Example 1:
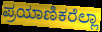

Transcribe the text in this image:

ಪ್ರಯಾಣಿಕರೆಲ್ಲಾ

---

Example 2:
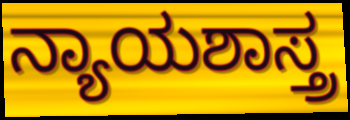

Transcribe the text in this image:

ನ್ಯಾಯಶಾಸ್ತ್ರ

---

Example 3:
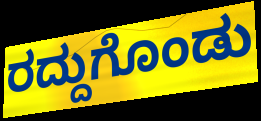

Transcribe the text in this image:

ರದ್ದುಗೊಂಡು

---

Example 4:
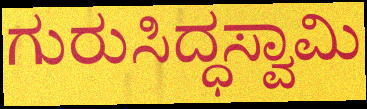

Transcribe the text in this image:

ಗುರುಸಿದ್ಧಸ್ವಾಮಿ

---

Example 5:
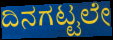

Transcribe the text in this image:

ದಿನಗಟ್ಟಲೇ